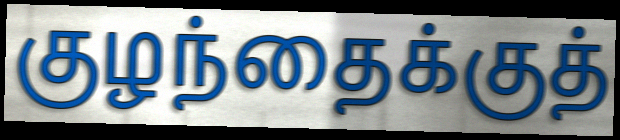
குழந்தைக்குத்